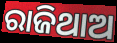
ରାଜିଥାଅ